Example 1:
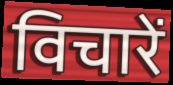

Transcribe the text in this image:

विचारें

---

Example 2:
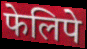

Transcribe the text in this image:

फेलिपे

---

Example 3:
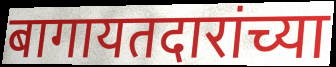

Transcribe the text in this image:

बागायतदारांच्या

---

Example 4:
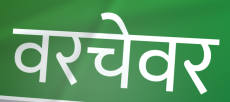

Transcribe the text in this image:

वरचेवर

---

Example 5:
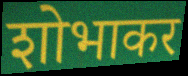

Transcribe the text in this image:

शोभाकर